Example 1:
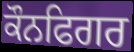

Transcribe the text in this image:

ਕੌਨਫਿਗਰ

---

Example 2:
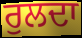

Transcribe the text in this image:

ਰੁਲਦਾ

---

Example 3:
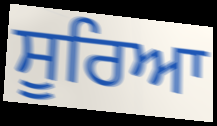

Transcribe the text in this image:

ਸੂਰਿਆ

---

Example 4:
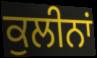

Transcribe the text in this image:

ਕੁਲੀਨਾਂ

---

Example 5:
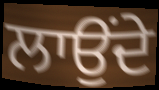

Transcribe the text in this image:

ਲਾਉਂਦੇ